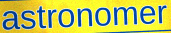
astronomer